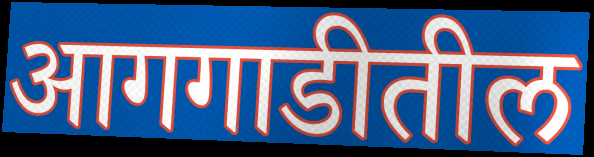
आगगाडीतील